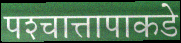
पश्चात्तापाकडे